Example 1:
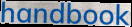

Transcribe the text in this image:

handbook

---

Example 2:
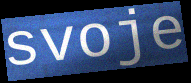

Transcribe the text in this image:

svoje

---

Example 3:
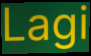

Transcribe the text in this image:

Lagi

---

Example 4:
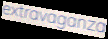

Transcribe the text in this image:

extravaganza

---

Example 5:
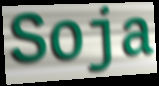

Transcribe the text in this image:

Soja